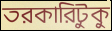
তরকারিটুকু